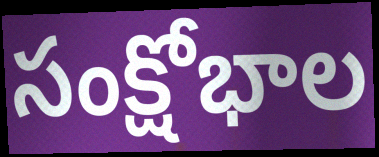
సంక్షోభాల